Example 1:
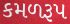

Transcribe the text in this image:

કમળરૂપ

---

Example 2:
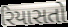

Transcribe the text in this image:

રિયાસતો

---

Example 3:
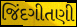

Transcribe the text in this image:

જિંદગીતણી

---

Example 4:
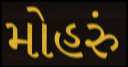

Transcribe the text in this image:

મોહરું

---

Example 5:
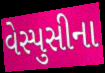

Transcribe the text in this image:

વેસ્પુસીના